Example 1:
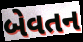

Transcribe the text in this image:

બેવતન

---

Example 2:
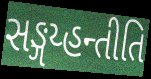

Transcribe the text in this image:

સઙ્ગય્હન્તીતિ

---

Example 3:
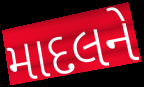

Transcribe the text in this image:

માદલને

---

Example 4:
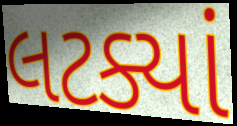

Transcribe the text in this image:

લટક્યાં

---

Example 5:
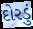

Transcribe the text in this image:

દોરડું